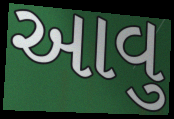
આવુ